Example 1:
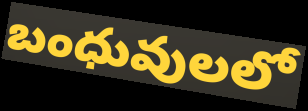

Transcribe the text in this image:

బంధువులలో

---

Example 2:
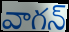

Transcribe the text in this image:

వాగన్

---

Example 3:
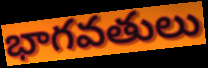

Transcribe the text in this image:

భాగవతులు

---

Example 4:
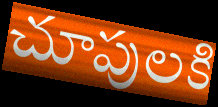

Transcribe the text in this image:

చూపులకి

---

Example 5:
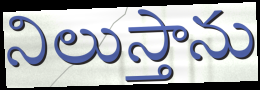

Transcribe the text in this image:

నిలుస్తాను